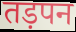
तड़पन